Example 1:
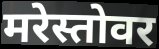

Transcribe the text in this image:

मरेस्तोवर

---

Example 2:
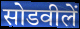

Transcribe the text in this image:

सोडवीलें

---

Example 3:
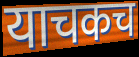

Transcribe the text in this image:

याचकच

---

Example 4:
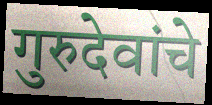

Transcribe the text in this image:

गुरुदेवांचे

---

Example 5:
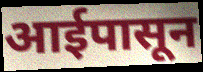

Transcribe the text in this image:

आईपासून